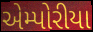
એમ્પોરીયા